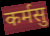
कर्मसु